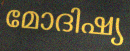
മോദിഷ്യ